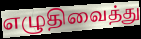
எழுதிவைத்து